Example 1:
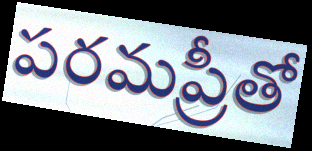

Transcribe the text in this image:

పరమప్రీతో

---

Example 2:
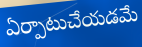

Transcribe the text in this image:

ఏర్పాటుచేయడమే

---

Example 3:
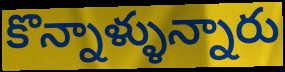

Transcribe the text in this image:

కొన్నాళ్ళున్నారు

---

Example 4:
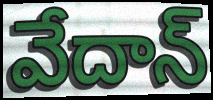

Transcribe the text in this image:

వేదాన్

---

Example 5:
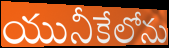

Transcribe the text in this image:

యునీకేలోను